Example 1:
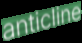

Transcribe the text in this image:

anticline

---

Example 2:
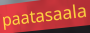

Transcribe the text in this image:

paatasaala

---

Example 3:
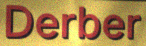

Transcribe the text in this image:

Derber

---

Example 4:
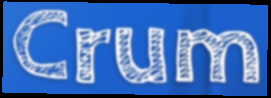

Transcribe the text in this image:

Crum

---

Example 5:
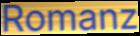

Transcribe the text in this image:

Romanz